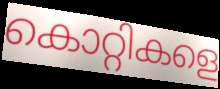
കൊറ്റികളെ